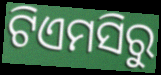
ଟିଏମସିରୁ